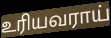
உரியவராய்